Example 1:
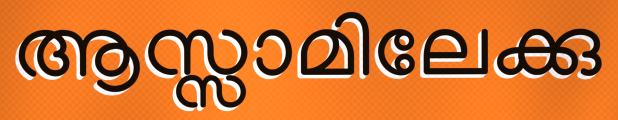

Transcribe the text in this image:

ആസ്സാമിലേക്കു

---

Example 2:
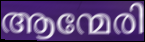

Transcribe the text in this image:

ആന്മേരി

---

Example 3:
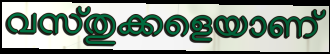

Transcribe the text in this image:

വസ്തുക്കളെയാണ്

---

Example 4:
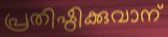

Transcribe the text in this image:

പ്രതിഷ്ഠിക്കുവാന്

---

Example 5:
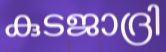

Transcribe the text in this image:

കുടജാദ്രി